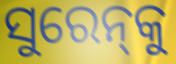
ସୁରେନ୍‌କୁ